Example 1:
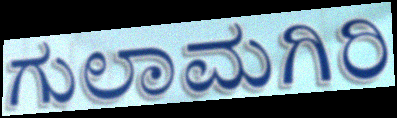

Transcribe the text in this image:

ಗುಲಾಮಗಿರಿ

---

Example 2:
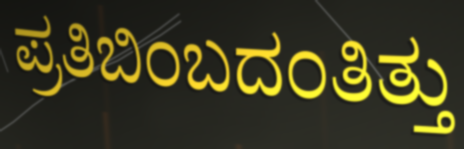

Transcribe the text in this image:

ಪ್ರತಿಬಿಂಬದಂತಿತ್ತು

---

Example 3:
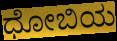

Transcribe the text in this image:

ಧೋಬಿಯ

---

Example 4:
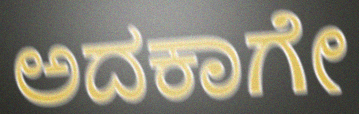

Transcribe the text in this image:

ಅದಕಾಗೇ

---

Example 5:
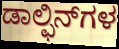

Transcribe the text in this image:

ಡಾಲ್ಫಿನ್‌ಗಳ